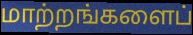
மாற்றங்களைப்